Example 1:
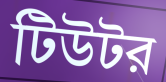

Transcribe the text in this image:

টিউটর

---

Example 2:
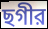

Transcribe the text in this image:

ছগীর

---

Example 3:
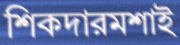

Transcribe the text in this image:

শিকদারমশাই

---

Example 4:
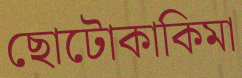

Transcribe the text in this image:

ছোটোকাকিমা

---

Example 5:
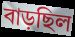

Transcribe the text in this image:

বাড়ছিল